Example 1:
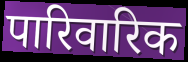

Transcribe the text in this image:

पारिवारिक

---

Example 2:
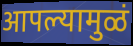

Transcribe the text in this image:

आपल्यामुळं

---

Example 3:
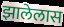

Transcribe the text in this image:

झालेलास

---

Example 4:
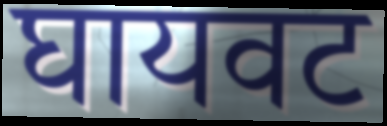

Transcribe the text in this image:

घायवट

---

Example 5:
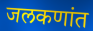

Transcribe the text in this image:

जलकणांत